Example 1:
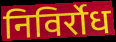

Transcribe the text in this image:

निविर्रोध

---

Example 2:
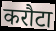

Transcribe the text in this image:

करौटा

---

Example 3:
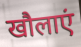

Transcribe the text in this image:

खौलाएं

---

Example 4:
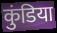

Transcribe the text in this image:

कुंडिया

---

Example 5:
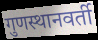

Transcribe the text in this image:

गुणस्थानवर्ती